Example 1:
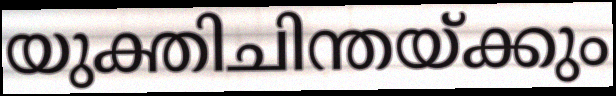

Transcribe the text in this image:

യുക്തിചിന്തയ്ക്കും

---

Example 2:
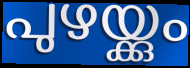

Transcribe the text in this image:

പുഴയ്ക്കും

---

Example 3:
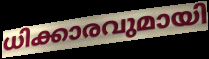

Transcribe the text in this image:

ധിക്കാരവുമായി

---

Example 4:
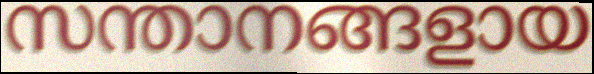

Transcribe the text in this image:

സന്താനങ്ങളായ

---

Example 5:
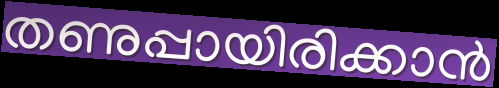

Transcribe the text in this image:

തണുപ്പായിരിക്കാൻ